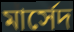
মার্সেদ